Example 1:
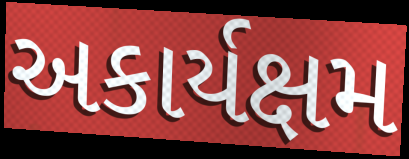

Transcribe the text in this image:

અકાર્યક્ષમ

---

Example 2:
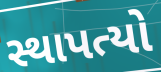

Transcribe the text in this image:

સ્થાપત્યો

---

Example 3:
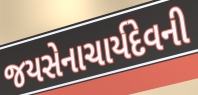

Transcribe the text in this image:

જયસેનાચાર્યદેવની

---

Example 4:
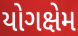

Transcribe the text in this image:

યોગક્ષેમ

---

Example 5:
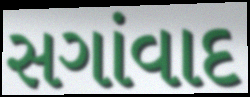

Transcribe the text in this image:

સગાંવાદ